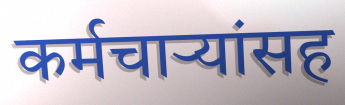
कर्मचाऱ्यांसह